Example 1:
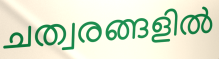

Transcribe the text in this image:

ചത്വരങ്ങളിൽ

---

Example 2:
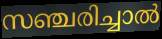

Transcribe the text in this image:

സഞ്ചരിച്ചാൽ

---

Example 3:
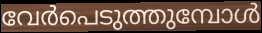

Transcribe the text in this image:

വേർപെടുത്തുമ്പോൾ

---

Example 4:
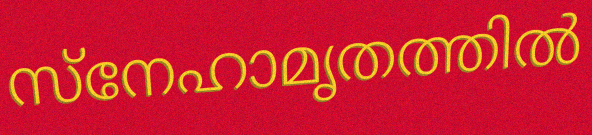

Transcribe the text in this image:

സ്നേഹാമൃതത്തിൽ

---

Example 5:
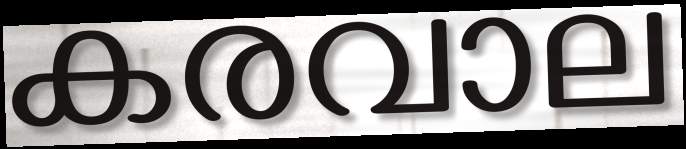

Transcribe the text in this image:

കരവാല